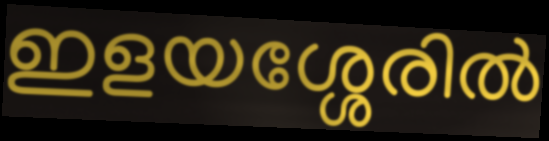
ഇളയശ്ശേരിൽ